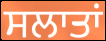
ਸਲਾਤਾਂ